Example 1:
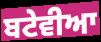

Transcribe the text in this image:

ਬਟੇਵੀਆ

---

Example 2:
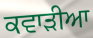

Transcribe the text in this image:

ਕਵਾੜੀਆ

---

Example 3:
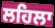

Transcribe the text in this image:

ਲਹਿਲਾ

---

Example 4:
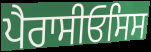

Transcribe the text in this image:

ਪੈਰਾਸੀਓਸਿਸ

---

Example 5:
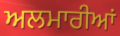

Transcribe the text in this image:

ਅਲਮਾਰੀਆਂ